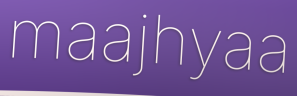
maajhyaa